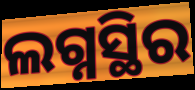
ଲଗ୍ନସ୍ଥିର